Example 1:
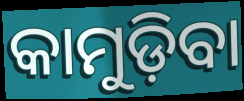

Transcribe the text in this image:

କାମୁଡ଼ିବା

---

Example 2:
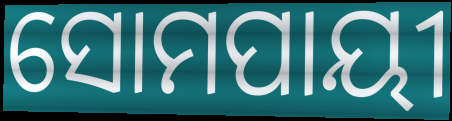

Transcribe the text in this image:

ସୋମପାୟୀ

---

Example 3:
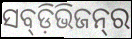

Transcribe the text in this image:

ସବ୍‍ଡ଼ିଭିଜନ୍‍ର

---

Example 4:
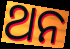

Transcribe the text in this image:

ଥନ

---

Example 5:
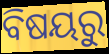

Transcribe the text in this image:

ବିଷୟରୁ